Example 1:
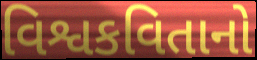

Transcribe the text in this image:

વિશ્વકવિતાનો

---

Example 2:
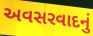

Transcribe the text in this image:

અવસરવાદનું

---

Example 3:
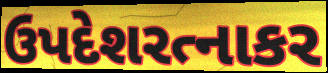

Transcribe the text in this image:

ઉપદેશરત્નાકર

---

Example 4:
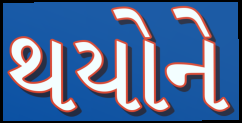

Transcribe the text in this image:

થયોને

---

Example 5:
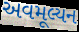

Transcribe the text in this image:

અવમૂલ્યન